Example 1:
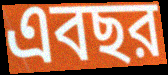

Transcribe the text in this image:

এবছর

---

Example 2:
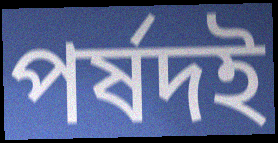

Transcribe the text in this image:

পর্ষদই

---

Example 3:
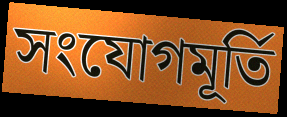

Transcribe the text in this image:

সংযোগমূর্তি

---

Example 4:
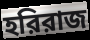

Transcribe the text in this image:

হরিরাজ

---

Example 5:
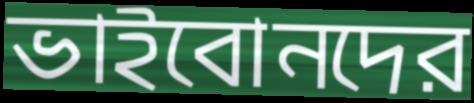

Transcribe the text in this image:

ভাইবোনদের